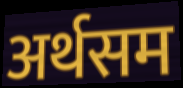
अर्थसम